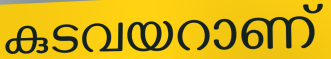
കുടവയറാണ്